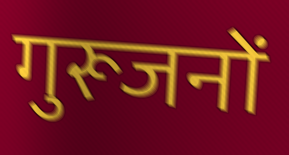
गुरूजनों